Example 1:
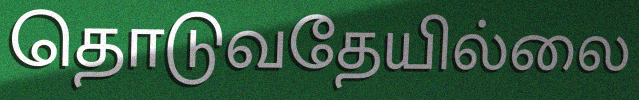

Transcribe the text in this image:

தொடுவதேயில்லை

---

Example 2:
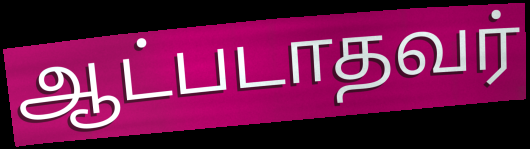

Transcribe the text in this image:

ஆட்படாதவர்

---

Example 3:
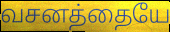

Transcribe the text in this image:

வசனத்தையே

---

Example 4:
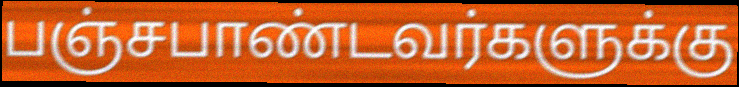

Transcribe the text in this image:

பஞ்சபாண்டவர்களுக்கு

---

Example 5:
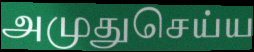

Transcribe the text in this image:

அமுதுசெய்ய